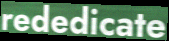
rededicate